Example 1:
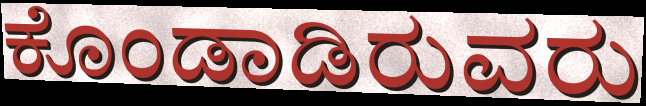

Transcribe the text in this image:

ಕೊಂಡಾಡಿರುವರು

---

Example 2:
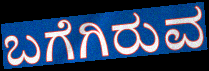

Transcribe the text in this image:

ಬಗೆಗಿರುವ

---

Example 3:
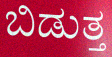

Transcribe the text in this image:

ಬಿಡುತ್ತ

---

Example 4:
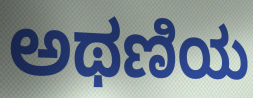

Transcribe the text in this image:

ಅಥಣಿಯ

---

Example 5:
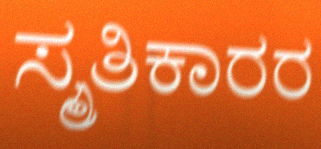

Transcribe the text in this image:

ಸ್ಮೃತಿಕಾರರ